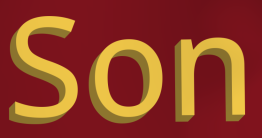
Son